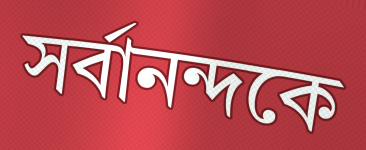
সর্বানন্দকে